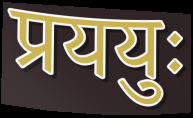
प्रययुः